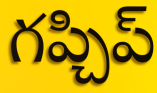
గప్చిప్